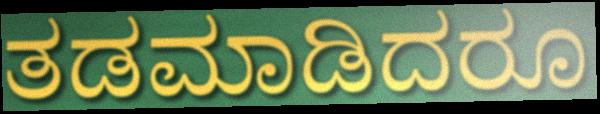
ತಡಮಾಡಿದರೂ